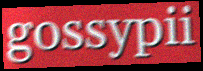
gossypii